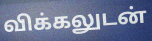
விக்கலுடன்